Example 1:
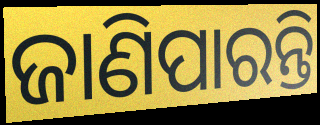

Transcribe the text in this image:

ଜାଣିପାରନ୍ତି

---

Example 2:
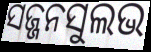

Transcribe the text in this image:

ସଜ୍ଜନସୁଲଭ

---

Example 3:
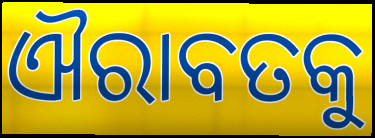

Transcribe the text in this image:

ଐରାବତକୁ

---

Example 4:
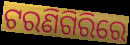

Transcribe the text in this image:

ଟରଣିଗିରିରେ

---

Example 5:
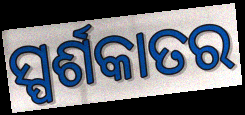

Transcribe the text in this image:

ସ୍ପର୍ଶକାତର